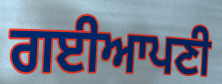
ਗਈਆਪਣੀ